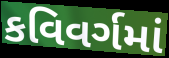
કવિવર્ગમાં